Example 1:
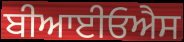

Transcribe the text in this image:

ਬੀਆਈਓਐਸ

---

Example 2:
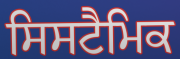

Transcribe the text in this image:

ਸਿਸਟੈਮਿਕ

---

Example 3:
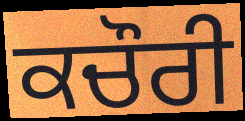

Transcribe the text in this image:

ਕਚੌਰੀ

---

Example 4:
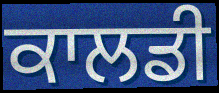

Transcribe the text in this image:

ਕਾਲਡੀ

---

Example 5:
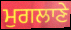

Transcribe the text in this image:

ਮੁਗਲਾਣੇ